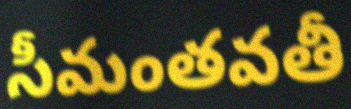
సీమంతవతీ